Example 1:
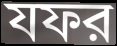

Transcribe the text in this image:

যফর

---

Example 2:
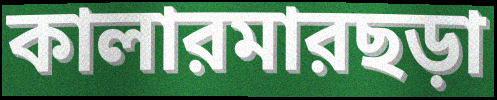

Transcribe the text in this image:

কালারমারছড়া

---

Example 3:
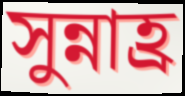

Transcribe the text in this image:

সুন্নাহ্র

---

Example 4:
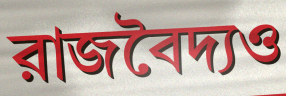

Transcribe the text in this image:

রাজবৈদ্যও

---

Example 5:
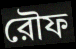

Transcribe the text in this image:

রৌফ